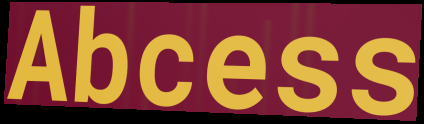
Abcess